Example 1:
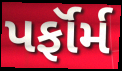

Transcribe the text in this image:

પર્ફૉર્મ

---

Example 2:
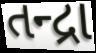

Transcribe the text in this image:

તન્દ્રા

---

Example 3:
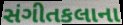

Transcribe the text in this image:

સંગીતકલાના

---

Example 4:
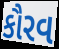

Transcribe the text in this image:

કૌરવ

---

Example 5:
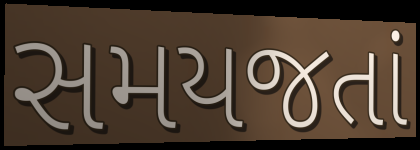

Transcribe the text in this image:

સમયજતાં